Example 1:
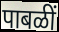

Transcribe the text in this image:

पाबळीं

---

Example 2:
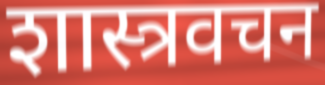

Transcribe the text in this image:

शास्त्रवचन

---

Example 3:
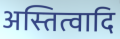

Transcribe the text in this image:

अस्तित्वादि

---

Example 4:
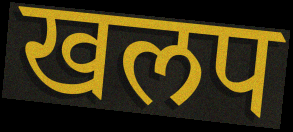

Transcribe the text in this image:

खलप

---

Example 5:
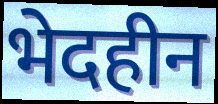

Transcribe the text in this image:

भेदहीन